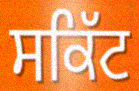
ਸਕਿੱਟ